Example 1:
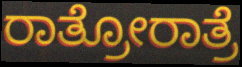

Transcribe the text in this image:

ರಾತ್ರೋರಾತ್ರೆ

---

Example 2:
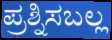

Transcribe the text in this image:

ಪ್ರಶ್ನಿಸಬಲ್ಲ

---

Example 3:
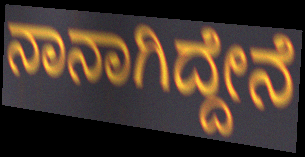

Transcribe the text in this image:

ನಾನಾಗಿದ್ದೇನೆ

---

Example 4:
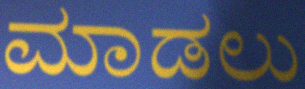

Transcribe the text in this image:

ಮಾಡಲು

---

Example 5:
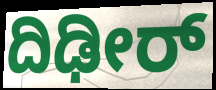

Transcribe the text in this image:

ದಿಢೀರ್